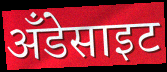
अँडेसाइट